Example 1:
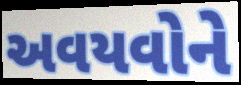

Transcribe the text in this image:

અવયવોને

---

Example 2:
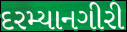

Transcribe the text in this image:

દરમ્યાનગીરી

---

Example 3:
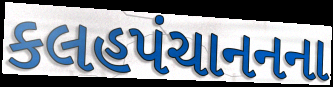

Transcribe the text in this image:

કલહપંચાનનના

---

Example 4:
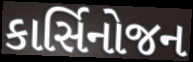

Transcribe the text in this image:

કાર્સિનોજન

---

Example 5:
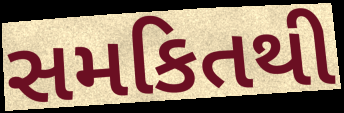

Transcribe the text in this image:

સમકિતથી